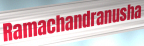
Ramachandranusha